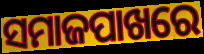
ସମାଜପାଖରେ